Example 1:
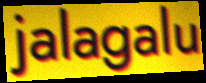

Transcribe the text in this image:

jalagalu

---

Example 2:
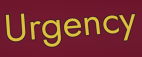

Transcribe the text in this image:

Urgency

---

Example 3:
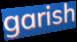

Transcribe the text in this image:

garish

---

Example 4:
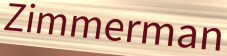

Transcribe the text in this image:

Zimmerman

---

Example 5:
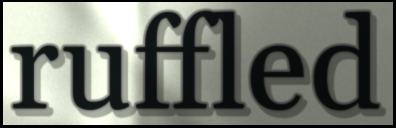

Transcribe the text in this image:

ruffled